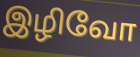
இழிவோ